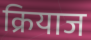
क्रियाज